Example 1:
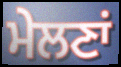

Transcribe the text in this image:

ਮੇਲਣਾਂ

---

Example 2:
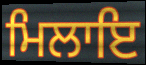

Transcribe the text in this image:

ਮਿਲਾਇ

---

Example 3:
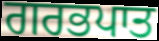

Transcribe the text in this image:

ਗਰਭਪਾਤ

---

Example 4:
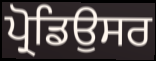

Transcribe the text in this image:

ਪ੍ਰੋਡਿਉਸਰ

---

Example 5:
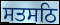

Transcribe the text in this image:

ਸਤਸਠਿ